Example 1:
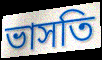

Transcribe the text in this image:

ভাসতি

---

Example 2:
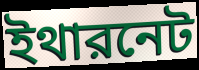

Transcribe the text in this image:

ইথারনেট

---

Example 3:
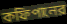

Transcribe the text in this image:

কফিপানের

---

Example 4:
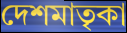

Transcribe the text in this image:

দেশমাতৃকা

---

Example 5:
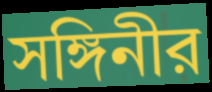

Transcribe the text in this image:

সঙ্গিনীর